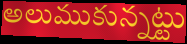
అలుముకున్నట్టు